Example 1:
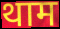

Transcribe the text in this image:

थाम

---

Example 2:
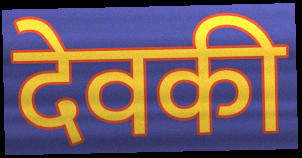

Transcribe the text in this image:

देवकी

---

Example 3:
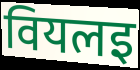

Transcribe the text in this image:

वियलइ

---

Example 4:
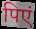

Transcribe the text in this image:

पिएं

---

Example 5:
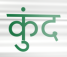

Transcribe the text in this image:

कुंद